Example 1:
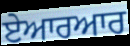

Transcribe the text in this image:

ਏਆਰਆਰ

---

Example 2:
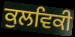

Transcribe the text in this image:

ਕੁਲਵਿਕੀ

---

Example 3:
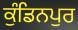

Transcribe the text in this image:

ਕੁੰਡਿਨਪੁਰ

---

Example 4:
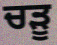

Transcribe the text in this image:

ਚੜੂ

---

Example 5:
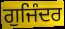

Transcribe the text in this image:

ਗੁਜਿੰਦਰ